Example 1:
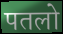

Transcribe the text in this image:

पतलो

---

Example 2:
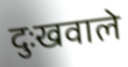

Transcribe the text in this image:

दुःखवाले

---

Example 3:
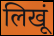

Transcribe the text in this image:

लिखूं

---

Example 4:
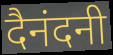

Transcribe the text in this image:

दैनंदनी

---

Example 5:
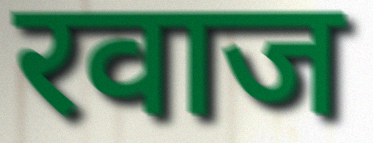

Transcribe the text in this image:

रवाज